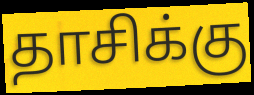
தாசிக்கு